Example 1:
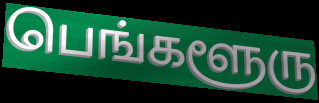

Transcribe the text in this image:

பெங்களூரு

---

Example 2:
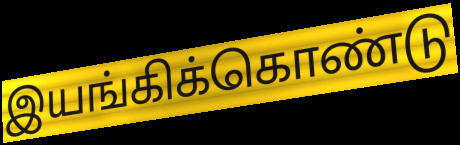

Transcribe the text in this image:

இயங்கிக்கொண்டு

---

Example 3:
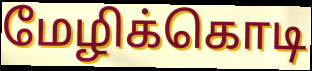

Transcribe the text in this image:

மேழிக்கொடி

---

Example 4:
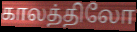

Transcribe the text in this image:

காலத்திலோ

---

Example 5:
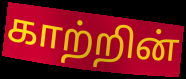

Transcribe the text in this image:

காற்றின்